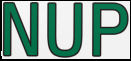
NUP